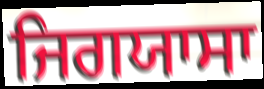
ਜਿਗਯਾਸਾ